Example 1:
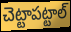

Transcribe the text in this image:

చెట్టాపట్టాల్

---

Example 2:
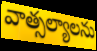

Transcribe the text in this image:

వాత్సల్యాలను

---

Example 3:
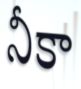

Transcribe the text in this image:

నీకా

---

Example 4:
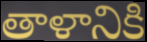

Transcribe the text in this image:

తాళానికి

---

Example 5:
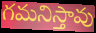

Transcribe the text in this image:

గమనిస్తావు